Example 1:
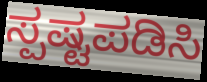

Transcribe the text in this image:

ಸ್ಪಷ್ಟಪಡಿಸಿ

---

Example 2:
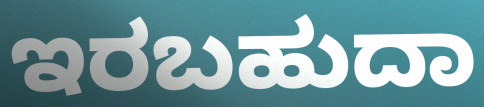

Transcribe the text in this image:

ಇರಬಹುದಾ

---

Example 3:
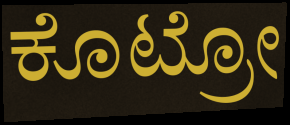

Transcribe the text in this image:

ಕೊಟ್ರೋ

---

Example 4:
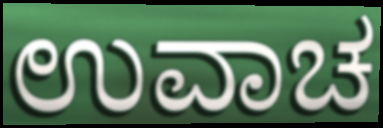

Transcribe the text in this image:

ಉವಾಚ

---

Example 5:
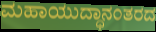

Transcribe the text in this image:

ಮಹಾಯುದ್ಧಾನಂತರದ